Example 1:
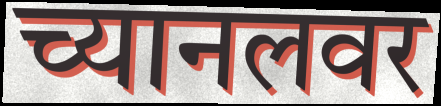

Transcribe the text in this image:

च्यानलवर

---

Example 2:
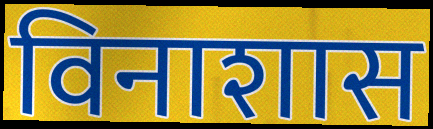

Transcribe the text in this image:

विनाशास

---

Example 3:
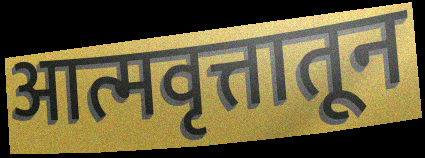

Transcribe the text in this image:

आत्मवृत्तातून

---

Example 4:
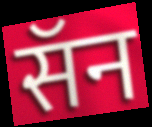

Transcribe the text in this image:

सॅन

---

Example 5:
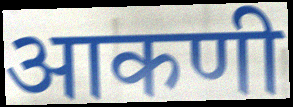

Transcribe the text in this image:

आकणी